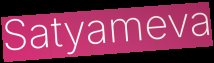
Satyameva